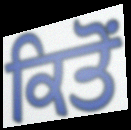
ਕਿਤੋਂ